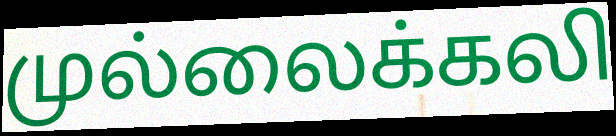
முல்லைக்கலி